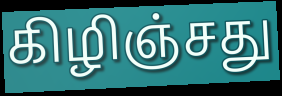
கிழிஞ்சது